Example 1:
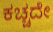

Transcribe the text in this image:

ಕಚ್ಚದೇ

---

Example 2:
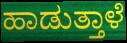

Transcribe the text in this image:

ಹಾಡುತ್ತಾಳೆ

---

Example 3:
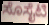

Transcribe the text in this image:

ಸೊಸೈಟಿ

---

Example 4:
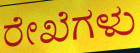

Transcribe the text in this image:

ರೇಖೆಗಳು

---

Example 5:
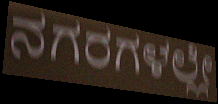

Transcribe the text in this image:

ನಗರಗಳಲ್ಲೇ